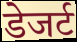
डेजर्ट